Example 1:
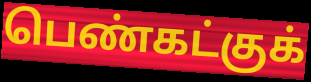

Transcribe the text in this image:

பெண்கட்குக்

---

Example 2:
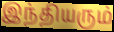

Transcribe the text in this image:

இந்தியரும்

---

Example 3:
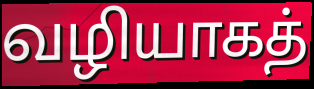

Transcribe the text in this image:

வழியாகத்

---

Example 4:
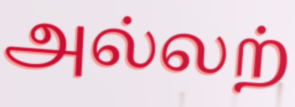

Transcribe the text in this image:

அல்லற்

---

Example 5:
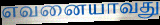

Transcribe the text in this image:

எவனையாவது